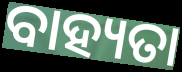
ବାହ୍ୟତା